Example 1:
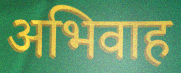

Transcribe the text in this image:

अभिवाह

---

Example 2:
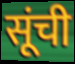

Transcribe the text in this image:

सूंची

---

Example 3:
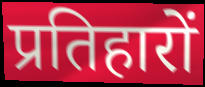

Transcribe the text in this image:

प्रतिहारों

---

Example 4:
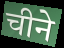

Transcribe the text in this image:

चीने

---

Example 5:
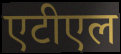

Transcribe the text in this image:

एटीएल